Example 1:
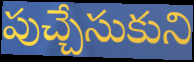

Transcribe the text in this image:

పుచ్చేసుకుని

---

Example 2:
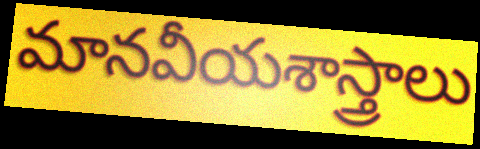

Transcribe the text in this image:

మానవీయశాస్త్రాలు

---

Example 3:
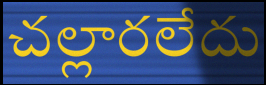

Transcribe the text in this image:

చల్లారలేదు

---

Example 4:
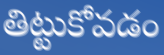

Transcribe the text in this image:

తిట్టుకోవడం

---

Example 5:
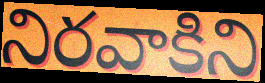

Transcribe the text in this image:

నిరవాకిని